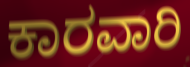
ಕಾರವಾರಿ